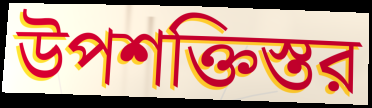
উপশক্তিস্তর